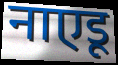
नाएडू